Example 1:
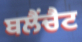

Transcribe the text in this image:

ਬਲੈਂਚੈਟ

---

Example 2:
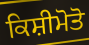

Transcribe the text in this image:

ਕਿਸ਼ੀਮੋਤੋ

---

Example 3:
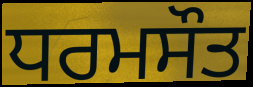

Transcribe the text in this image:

ਧਰਮਸੌਤ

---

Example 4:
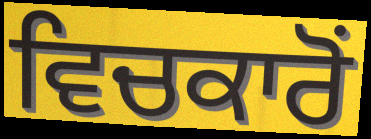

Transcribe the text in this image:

ਵਿਚਕਾਰੋਂ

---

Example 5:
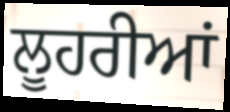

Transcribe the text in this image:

ਲੂਹਰੀਆਂ